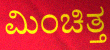
ಮಿಂಚಿತ್ತ